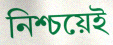
নিশ্চয়েই